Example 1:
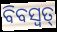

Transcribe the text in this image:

ବିବସ୍ଵତ୍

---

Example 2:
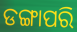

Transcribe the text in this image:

ଡଙ୍ଗାପରି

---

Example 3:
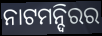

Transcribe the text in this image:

ନାଟମନ୍ଦିରର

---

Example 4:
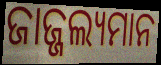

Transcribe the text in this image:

ଜାଜ୍ଜଲ୍ୟମାନ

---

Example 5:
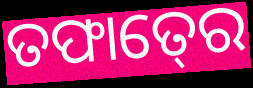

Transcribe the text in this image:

ତଫାତ୍‍ରେ